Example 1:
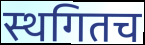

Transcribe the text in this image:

स्थगितच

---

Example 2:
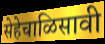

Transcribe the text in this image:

सेहेचाळिसावी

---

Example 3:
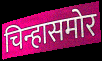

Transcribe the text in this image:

चिन्हासमोर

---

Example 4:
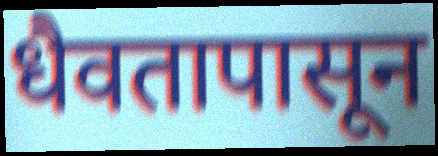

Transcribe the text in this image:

धैवतापासून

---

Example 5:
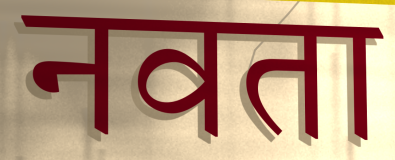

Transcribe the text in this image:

नवता